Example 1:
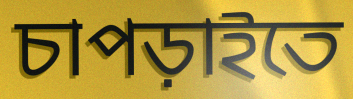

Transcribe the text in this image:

চাপড়াইতে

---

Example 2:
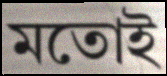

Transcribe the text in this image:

মতোই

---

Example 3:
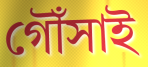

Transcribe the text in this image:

গৌঁসাই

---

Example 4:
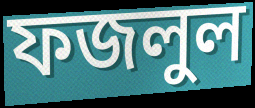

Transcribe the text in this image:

ফজলুল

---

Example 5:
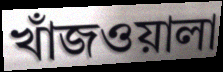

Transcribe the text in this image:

খাঁজওয়ালা